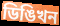
ডিঙিখন